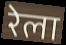
रेला